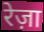
रेज़ा